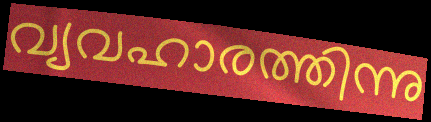
വ്യവഹാരത്തിന്നു